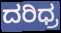
ದರಿಧ್ರ